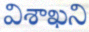
విశాఖని